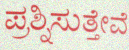
ಪ್ರಶ್ನಿಸುತ್ತೇವೆ